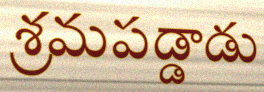
శ్రమపడ్డాడు